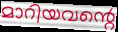
മാറിയവന്റെ